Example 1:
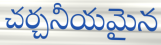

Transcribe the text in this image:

చర్చనీయమైన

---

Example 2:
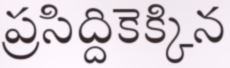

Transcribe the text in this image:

ప్రసిద్దికెక్కిన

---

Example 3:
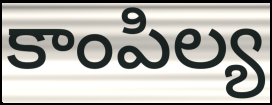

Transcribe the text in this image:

కాంపిల్య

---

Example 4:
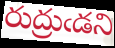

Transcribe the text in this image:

రుద్రుఁడని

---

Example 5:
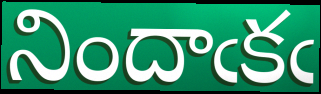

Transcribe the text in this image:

నిందాఁకఁ